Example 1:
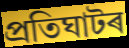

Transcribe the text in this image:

প্ৰতিঘাটৰ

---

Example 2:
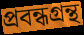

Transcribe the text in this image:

প্ৰবন্ধগ্ৰন্থ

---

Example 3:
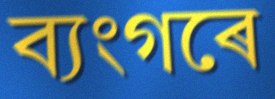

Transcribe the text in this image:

ব্যংগৰে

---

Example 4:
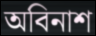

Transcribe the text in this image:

অবিনাশ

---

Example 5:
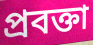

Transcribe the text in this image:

প্ৰবক্তা